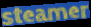
steamer